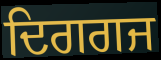
ਦਿਗਗਜ